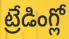
ట్రేడింగ్లో